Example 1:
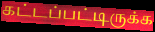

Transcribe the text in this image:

கட்டப்பட்டிருக்க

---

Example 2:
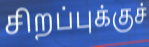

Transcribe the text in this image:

சிறப்புக்குச்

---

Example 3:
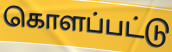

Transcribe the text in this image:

கொளப்பட்டு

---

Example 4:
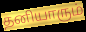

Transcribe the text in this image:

தனியாரும்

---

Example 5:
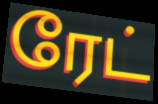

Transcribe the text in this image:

ரேட்